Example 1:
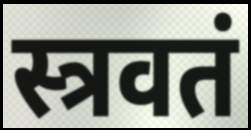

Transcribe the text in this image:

स्त्रवतं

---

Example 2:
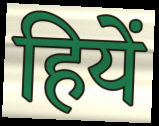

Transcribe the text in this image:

हियें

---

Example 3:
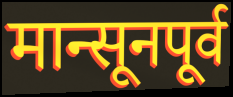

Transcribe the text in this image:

मान्सूनपूर्व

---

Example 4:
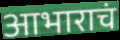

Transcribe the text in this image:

आभाराचं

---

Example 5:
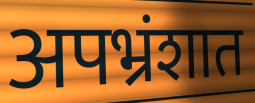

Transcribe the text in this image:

अपभ्रंशात